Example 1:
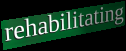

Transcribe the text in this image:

rehabilitating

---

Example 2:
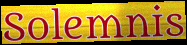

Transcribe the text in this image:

Solemnis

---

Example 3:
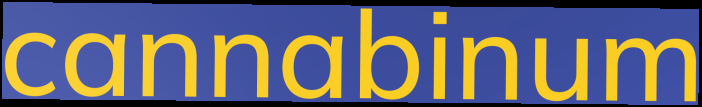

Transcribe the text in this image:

cannabinum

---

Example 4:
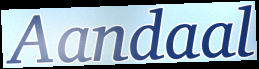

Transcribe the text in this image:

Aandaal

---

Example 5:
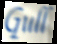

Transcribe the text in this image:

Gull